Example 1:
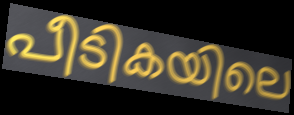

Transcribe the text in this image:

പീടികയിലെ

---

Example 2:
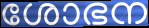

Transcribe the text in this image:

ശോഭന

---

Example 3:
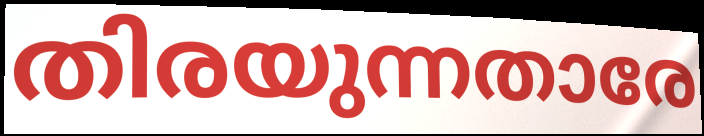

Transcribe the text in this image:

തിരയുന്നതാരേ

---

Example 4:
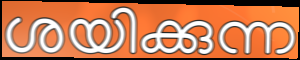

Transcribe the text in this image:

ശയിക്കുന്ന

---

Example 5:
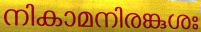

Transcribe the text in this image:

നികാമനിരങ്കുശഃ